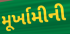
મૂર્ખામીની